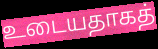
உடையதாகத்